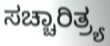
ಸಚ್ಚಾರಿತ್ರ್ಯ